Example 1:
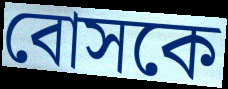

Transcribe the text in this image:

বোসকে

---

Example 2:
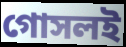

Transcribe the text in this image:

গোসলই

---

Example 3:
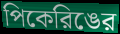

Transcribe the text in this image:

পিকেরিঙের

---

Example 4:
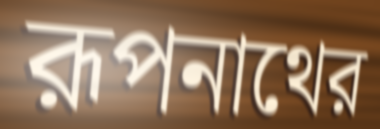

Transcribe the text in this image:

রূপনাথের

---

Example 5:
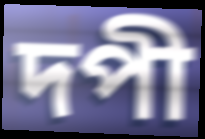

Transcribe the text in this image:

দপী